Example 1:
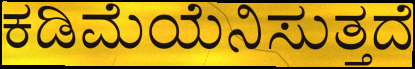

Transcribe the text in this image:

ಕಡಿಮೆಯೆನಿಸುತ್ತದೆ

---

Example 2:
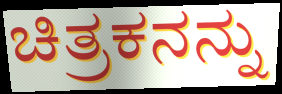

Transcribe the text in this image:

ಚಿತ್ರಕನನ್ನು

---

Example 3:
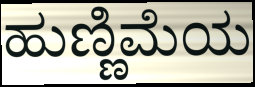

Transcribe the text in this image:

ಹುಣ್ಣಿಮೆಯ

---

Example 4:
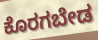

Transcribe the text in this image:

ಕೊರಗಬೇಡ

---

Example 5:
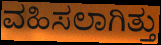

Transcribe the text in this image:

ವಹಿಸಲಾಗಿತ್ತು